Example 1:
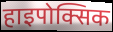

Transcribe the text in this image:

हाइपोक्सिक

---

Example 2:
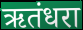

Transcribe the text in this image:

ऋतंधरा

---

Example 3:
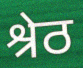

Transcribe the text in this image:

श्रेठ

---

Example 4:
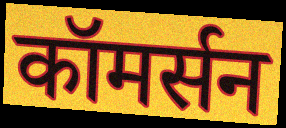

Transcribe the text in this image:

कॉमर्सन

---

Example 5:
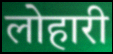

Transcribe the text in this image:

लोहारी